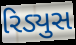
રિડ્યુસ